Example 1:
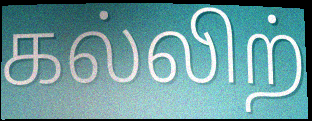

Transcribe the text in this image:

கல்லிற்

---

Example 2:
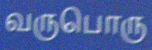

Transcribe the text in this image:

வருபொரு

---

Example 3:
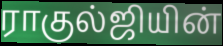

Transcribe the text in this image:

ராகுல்ஜியின்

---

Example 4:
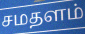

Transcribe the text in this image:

சமதளம்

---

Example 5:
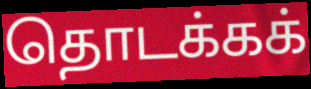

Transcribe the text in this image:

தொடக்கக்